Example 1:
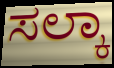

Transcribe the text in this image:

ಸಲ್ಕಾ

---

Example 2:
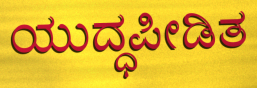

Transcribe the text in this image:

ಯುದ್ಧಪೀಡಿತ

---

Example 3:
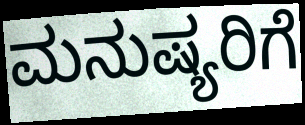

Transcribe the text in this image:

ಮನುಷ್ಯರಿಗೆ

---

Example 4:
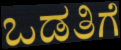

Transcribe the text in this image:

ಒಡತಿಗೆ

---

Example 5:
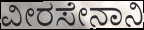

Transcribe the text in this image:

ವೀರಸೇನಾನಿ